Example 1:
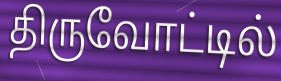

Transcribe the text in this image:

திருவோட்டில்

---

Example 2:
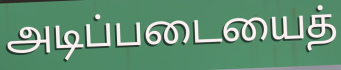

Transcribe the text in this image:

அடிப்படையைத்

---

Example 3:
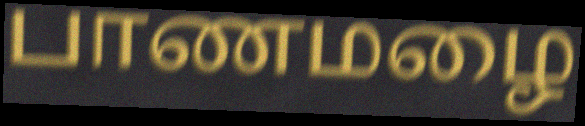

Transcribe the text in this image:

பாணமழை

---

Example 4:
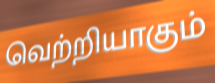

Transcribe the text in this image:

வெற்றியாகும்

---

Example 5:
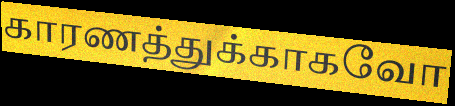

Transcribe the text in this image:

காரணத்துக்காகவோ